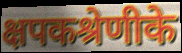
क्षपकश्रेणीके